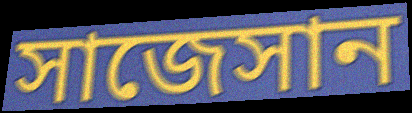
সাজেসান